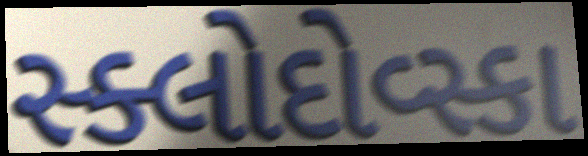
સ્ક્લોદોવ્સ્કા